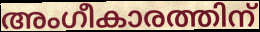
അംഗീകാരത്തിന്